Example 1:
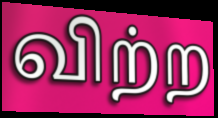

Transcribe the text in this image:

விற்ற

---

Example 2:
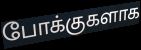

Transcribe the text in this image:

போக்குகளாக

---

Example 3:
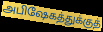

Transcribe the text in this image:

அபிஷேகத்துக்குத்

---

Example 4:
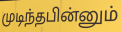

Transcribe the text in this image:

முடிந்தபின்னும்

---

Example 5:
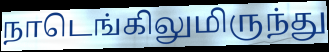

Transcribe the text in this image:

நாடெங்கிலுமிருந்து